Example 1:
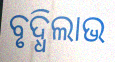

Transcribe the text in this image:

ବୃଦ୍ଧିଲାଭ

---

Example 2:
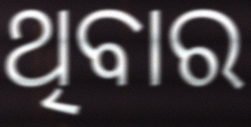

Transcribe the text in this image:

ଥିବାର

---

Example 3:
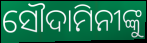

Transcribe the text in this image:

ସୌଦାମିନୀଙ୍କୁ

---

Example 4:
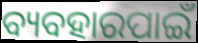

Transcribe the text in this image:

ବ୍ୟବହାରପାଇଁ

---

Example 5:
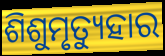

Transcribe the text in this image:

ଶିଶୁମୃତ୍ୟୁହାର